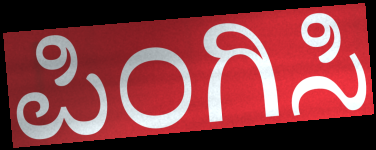
ಪಿಂಗಿಸಿ